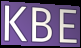
KBE